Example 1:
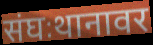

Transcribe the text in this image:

संघःथानावर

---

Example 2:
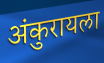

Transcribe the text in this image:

अंकुरायला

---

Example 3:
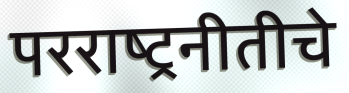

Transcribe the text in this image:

परराष्ट्रनीतीचे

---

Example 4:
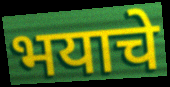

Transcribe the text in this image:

भयाचे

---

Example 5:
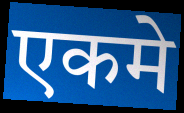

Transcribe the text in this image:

एकमे